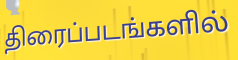
திரைப்படங்களில்